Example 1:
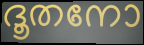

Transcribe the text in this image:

ദൂതനോ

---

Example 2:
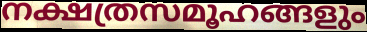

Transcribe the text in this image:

നക്ഷത്രസമൂഹങ്ങളും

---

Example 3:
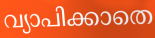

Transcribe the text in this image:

വ്യാപിക്കാതെ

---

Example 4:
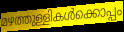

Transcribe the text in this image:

മഴത്തുള്ളികൾക്കൊപ്പം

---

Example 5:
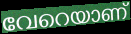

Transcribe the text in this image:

വേറെയാണ്